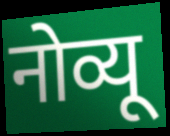
नोव्यू